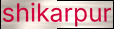
shikarpur